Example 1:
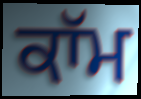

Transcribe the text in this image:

ਕਾੱਮ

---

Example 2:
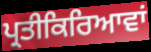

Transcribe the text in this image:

ਪ੍ਰਤੀਕਿਰਿਆਵਾਂ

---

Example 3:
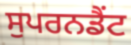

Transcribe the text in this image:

ਸੁਪਰਨਡੈਂਟ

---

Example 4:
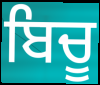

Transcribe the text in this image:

ਬਿਚੂ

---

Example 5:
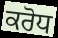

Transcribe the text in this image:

ਕਰੋਧ